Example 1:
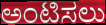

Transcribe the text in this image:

ಅಂಟಿಸಲು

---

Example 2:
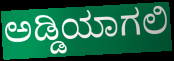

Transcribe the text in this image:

ಅಡ್ಡಿಯಾಗಲಿ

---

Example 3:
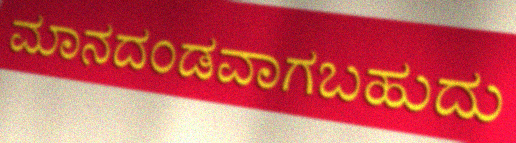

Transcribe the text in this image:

ಮಾನದಂಡವಾಗಬಹುದು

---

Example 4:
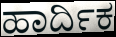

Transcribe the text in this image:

ಹಾರ್ದಿಕ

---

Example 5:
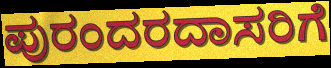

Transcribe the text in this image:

ಪುರಂದರದಾಸರಿಗೆ